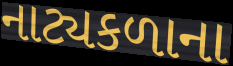
નાટ્યકળાના